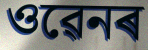
ওৱেনৰ